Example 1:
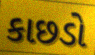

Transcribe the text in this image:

કાછડો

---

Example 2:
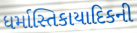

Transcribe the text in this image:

ધર્માસ્તિકાયાદિકની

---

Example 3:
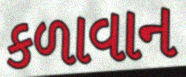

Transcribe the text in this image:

કળાવાન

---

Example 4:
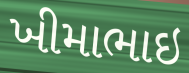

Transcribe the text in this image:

ખીમાભાઇ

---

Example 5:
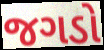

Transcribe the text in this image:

જગડો